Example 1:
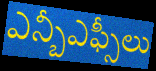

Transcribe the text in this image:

ఎన్బీఎఫ్సీలు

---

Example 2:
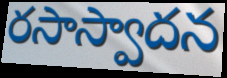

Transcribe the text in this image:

రసాస్వాదన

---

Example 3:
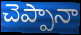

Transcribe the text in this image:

చెప్పానా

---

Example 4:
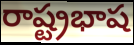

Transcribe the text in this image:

రాష్ట్రభాష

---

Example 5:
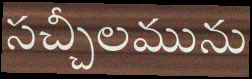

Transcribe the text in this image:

సచ్చీలమును